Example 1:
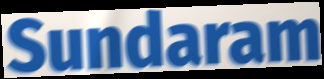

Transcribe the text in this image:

Sundaram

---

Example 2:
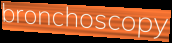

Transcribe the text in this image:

bronchoscopy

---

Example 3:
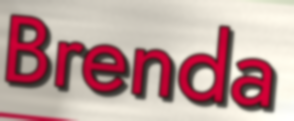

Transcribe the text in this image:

Brenda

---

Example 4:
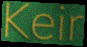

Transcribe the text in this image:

Keir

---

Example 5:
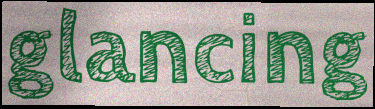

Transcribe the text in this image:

glancing